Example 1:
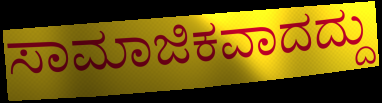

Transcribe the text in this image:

ಸಾಮಾಜಿಕವಾದದ್ದು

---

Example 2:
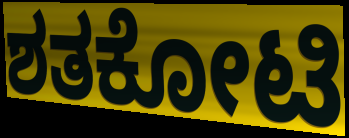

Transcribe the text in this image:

ಶತಕೋಟಿ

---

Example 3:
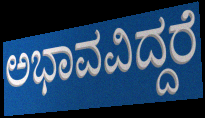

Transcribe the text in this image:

ಅಭಾವವಿದ್ದರೆ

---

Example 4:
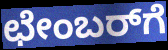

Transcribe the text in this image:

ಛೇಂಬರ್‌ಗೆ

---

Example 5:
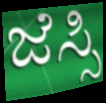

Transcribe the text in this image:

ಜೆಸ್ಸಿ